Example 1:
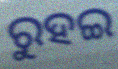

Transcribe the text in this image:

ରୁହଇ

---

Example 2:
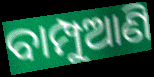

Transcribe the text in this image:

ବାମ୍ପୁଆଣି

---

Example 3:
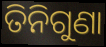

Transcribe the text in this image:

ତିନିଗୁଣା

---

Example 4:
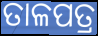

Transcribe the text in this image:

ତାଳପତ୍ର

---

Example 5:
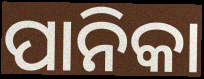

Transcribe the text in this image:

ପାନିକା